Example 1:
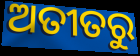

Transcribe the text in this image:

ଅତୀତରୁ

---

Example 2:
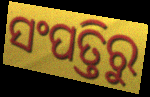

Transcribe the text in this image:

ସଂପତ୍ତିରୁ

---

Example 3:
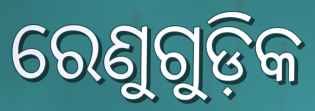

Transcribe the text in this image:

ରେଣୁଗୁଡ଼ିକ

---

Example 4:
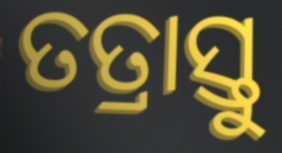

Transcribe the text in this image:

ତତ୍ରାସ୍ତୁ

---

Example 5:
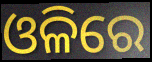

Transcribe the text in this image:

ଓଳିରେ